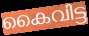
കൈവിട്ട